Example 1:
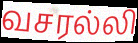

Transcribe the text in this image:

வசரல்லி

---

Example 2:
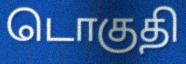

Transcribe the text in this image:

டொகுதி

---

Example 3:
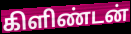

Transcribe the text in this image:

கிளிண்டன்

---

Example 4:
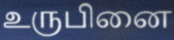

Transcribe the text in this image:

உருபினை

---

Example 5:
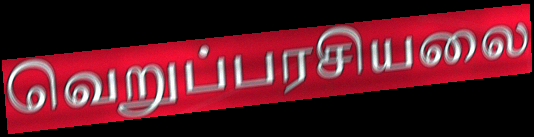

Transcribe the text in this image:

வெறுப்பரசியலை